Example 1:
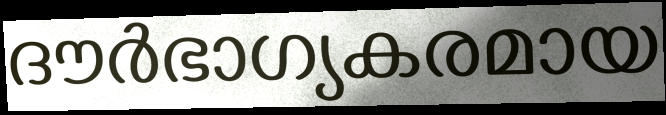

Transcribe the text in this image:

ദൗർഭാഗ്യകരമായ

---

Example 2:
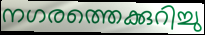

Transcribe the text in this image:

നഗരത്തെക്കുറിച്ചു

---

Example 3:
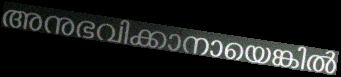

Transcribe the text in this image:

അനുഭവിക്കാനായെങ്കിൽ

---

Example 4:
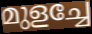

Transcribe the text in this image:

മുളച്ചേ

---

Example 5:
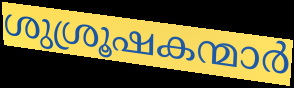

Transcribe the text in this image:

ശുശ്രൂഷകന്മാർ